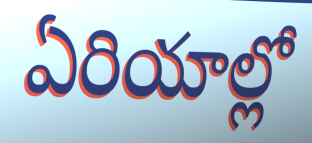
ఏరియాల్లో